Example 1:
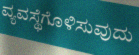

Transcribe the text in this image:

ವ್ಯವಸ್ಥೆಗೊಳಿಸುವುದು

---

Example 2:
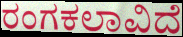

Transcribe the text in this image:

ರಂಗಕಲಾವಿದೆ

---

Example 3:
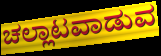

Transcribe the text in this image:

ಚಲ್ಲಾಟವಾಡುವ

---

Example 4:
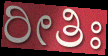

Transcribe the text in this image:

ರೀತಿಃ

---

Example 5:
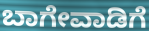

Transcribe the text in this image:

ಬಾಗೇವಾಡಿಗೆ